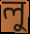
লু